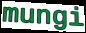
mungi